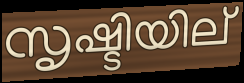
സൃഷ്ടിയില്